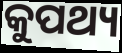
କୁପଥ୍ୟ